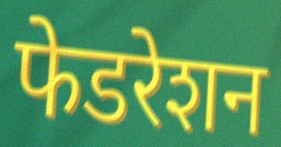
फेडरेशन